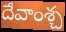
దేవాంశ్చ